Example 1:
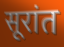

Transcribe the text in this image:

सूरांत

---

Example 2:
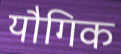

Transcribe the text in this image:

यौगिक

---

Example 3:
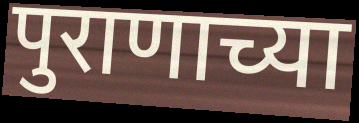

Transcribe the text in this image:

पुराणाच्या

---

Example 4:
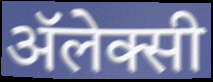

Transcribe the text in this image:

ॲलेक्सी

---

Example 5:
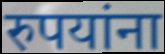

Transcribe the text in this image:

रुपयांना